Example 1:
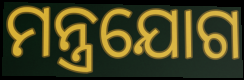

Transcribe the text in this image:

ମନ୍ତ୍ରଯୋଗ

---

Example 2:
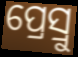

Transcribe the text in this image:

ପ୍ରେସ୍ରୁ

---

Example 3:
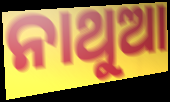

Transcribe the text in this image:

ନାଥୁଆ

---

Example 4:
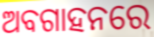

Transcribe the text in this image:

ଅବଗାହନରେ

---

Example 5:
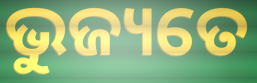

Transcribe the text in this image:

ଭୁଜ୍ୟତେ